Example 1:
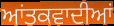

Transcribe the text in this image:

ਆਂਤਕਵਾਦੀਆਂ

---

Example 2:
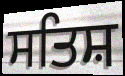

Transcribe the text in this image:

ਸਤਿਸ਼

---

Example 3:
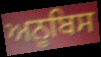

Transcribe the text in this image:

ਅਨੂਬਿਸ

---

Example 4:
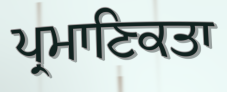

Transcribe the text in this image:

ਪ੍ਰਮਾਣਿਕਤਾ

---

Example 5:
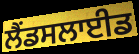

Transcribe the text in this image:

ਲੈਂਡਸਲਾਈਡ